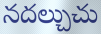
నదల్చుచు